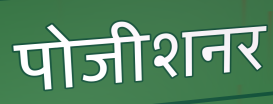
पोजीशनर